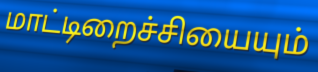
மாட்டிறைச்சியையும்